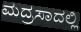
ಮದ್ರಸಾದಲ್ಲಿ